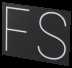
FS